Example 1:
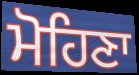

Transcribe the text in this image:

ਮੋਹਿਣਾ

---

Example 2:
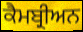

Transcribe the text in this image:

ਕੈਮਬ੍ਰੀਅਨ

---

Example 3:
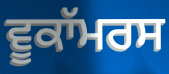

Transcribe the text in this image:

ਵੂਕਾੱਮਰਸ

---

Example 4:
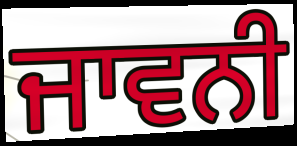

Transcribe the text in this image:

ਜਾਵਨੀ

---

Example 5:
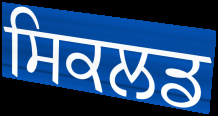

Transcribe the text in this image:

ਸਿਕਲਡ